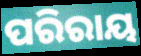
ପରିରାୟ